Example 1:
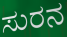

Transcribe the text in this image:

ಸುರನ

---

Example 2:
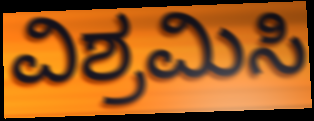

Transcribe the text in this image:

ವಿಶ್ರಮಿಸಿ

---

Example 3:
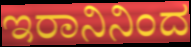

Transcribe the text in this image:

ಇರಾನಿನಿಂದ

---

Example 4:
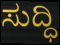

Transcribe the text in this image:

ಸುದ್ಧಿ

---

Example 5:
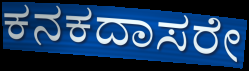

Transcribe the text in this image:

ಕನಕದಾಸರೇ